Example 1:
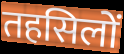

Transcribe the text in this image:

तहसिलों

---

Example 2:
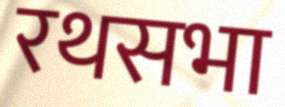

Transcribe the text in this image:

रथसभा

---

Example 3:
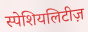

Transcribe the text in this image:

स्पेशियलिटीज़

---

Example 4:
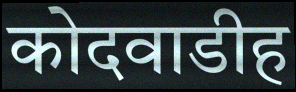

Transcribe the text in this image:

कोदवाडीह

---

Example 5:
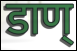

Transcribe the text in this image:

डाण्